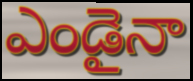
ఎండైనా